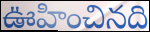
ఊహించినది